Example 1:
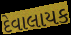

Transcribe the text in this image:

દેવાલાયક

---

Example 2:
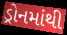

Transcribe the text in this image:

ડ્રોનમાંથી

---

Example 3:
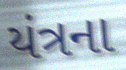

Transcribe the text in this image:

યંત્રના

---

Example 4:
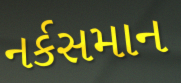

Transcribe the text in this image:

નર્કસમાન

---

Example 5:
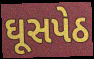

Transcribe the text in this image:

ઘૂસપેઠ